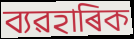
ব্যৱহাৰিক